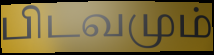
பிடவமும்